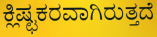
ಕ್ಲಿಷ್ಟಕರವಾಗಿರುತ್ತದೆ